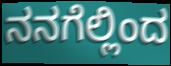
ನನಗೆಲ್ಲಿಂದ